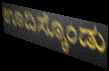
ಊದಿಸ್ಕೊಂಡು